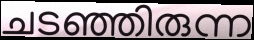
ചടഞ്ഞിരുന്ന